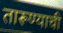
तारूण्याची